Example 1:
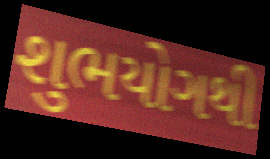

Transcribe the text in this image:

શુભયોગથી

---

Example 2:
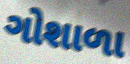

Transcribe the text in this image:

ગોશાળા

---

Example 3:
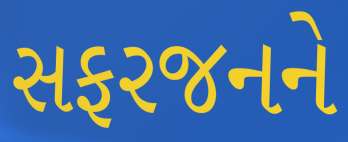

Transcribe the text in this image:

સફરજનને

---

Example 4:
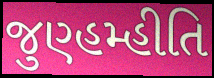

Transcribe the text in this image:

જુણ્હમ્હીતિ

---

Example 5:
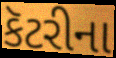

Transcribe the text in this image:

કૅટરીના